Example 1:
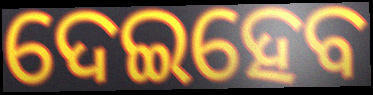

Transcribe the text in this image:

ଦେଇହେବ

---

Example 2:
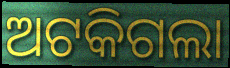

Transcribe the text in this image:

ଅଟକିଗଲା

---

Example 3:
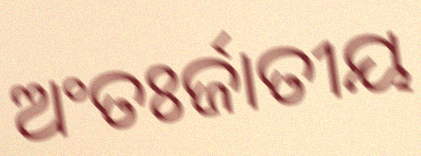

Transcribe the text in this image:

ଅଂତଃର୍ଜାତୀୟ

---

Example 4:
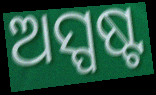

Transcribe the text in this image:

ଅସ୍ପଷ୍ଟ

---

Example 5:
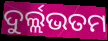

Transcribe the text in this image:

ଦୁର୍ଲ୍ଲଭତମ